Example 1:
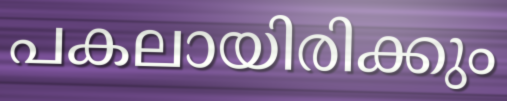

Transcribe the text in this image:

പകലായിരിക്കും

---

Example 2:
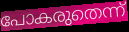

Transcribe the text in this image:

പോകരുതെന്ന്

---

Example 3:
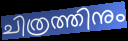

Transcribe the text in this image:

ചിത്രത്തിനും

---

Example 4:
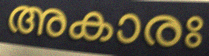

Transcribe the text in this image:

അകാരഃ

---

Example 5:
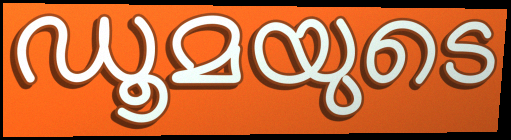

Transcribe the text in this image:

ഡൂമയുടെ